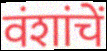
वंशांचें